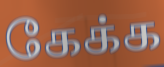
கேக்க